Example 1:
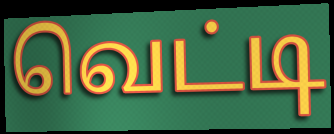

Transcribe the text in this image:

வெட்டி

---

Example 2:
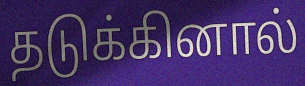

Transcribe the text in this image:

தடுக்கினால்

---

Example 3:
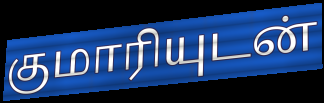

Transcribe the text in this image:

குமாரியுடன்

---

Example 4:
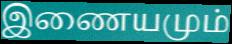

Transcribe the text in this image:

இணையமும்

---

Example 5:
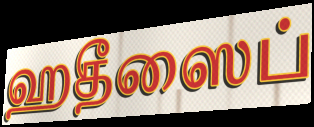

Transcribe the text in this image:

ஹதீஸைப்